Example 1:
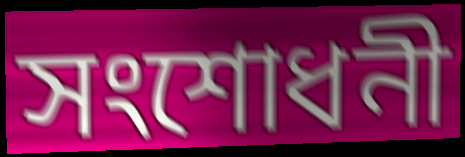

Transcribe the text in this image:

সংশোধনী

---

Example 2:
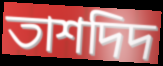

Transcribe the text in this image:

তাশদিদ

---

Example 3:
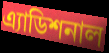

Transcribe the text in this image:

এ্যাডিশনাল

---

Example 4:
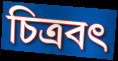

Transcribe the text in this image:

চিত্রবৎ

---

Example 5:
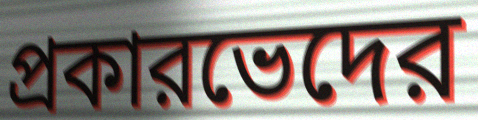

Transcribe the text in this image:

প্রকারভেদের